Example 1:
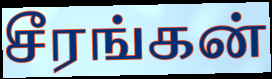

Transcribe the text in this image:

சீரங்கன்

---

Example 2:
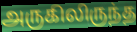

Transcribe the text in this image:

அருகிலிருந்த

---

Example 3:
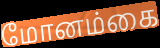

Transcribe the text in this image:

மோனம்கை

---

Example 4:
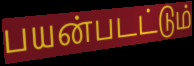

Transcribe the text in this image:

பயன்படட்டும்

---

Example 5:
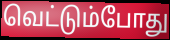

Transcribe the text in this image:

வெட்டும்போது